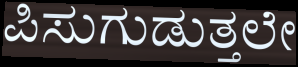
ಪಿಸುಗುಡುತ್ತಲೇ